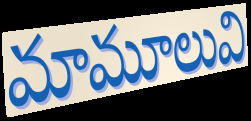
మామూలువి